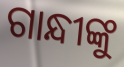
ଗାନ୍ଧୀଙ୍କୁ